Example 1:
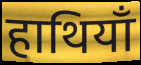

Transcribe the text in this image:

हाथियाँ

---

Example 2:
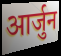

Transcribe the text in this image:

आर्जुन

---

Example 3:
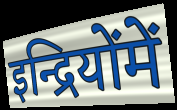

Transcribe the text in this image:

इन्द्रियोंमें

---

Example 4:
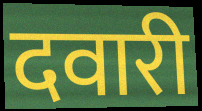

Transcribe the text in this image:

दवारी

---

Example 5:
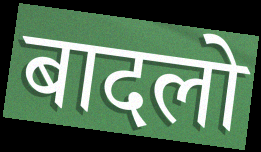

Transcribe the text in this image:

बादलो